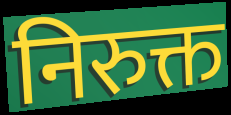
निरुक्त